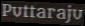
Puttaraju